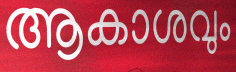
ആകാശവും